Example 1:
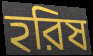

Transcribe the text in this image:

হরিষ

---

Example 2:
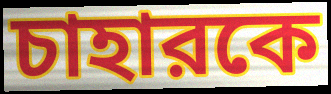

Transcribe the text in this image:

চাহারকে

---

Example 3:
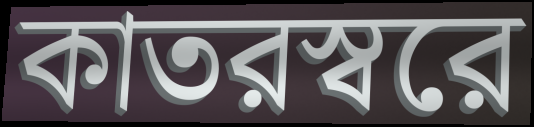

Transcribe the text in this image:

কাতরস্বরে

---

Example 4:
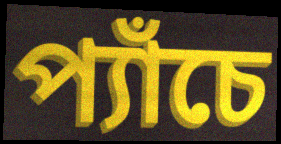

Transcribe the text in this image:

প্যাঁচে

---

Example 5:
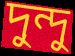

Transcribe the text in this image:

দুন্দু